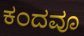
ಕಂದವೂ